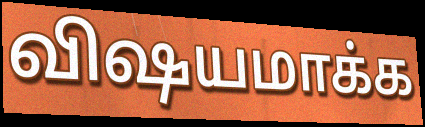
விஷயமாக்க